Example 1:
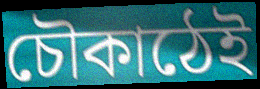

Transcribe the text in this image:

চৌকাঠেই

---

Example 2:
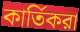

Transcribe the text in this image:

কার্তিকরা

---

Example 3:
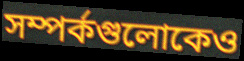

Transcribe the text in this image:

সম্পর্কগুলোকেও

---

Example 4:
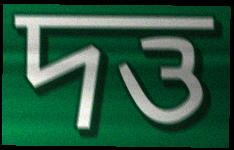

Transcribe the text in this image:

দত্ত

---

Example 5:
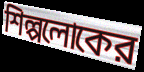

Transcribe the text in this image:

শিল্পলোকের